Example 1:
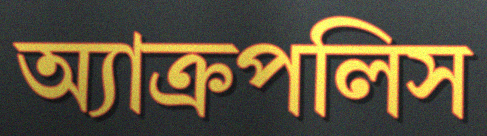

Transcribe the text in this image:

অ্যাক্রপলিস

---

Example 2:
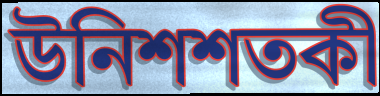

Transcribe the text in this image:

উনিশশতকী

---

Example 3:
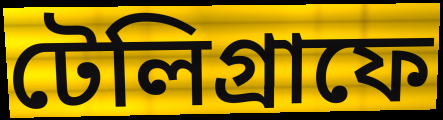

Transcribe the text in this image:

টেলিগ্রাফে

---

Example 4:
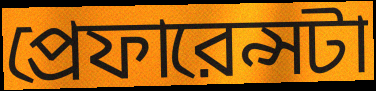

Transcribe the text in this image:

প্রেফারেন্সটা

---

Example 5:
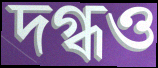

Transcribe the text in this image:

দগ্ধও